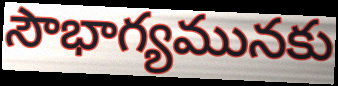
సౌభాగ్యమునకు